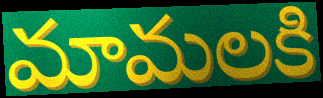
మామలకి